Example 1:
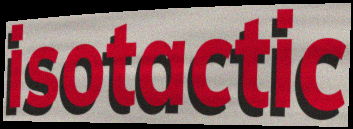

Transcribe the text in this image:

isotactic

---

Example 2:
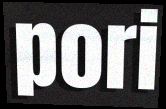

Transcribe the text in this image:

pori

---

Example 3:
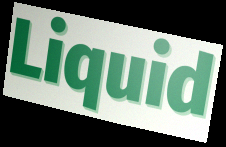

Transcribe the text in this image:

Liquid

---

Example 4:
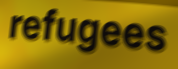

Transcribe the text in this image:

refugees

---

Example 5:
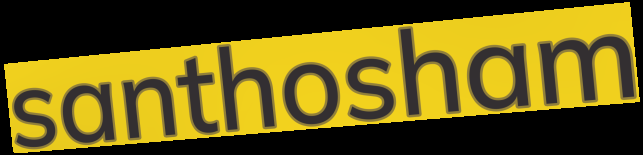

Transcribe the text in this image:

santhosham